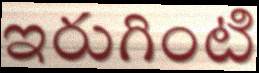
ఇరుగింటి